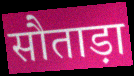
सौताड़ा